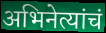
अभिनेत्यांचं